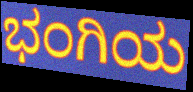
ಭಂಗಿಯ